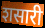
शसारी